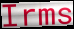
Irms